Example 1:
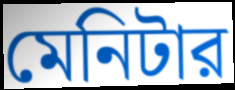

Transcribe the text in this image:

মেনিটার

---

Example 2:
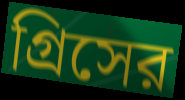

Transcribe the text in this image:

গ্রিসের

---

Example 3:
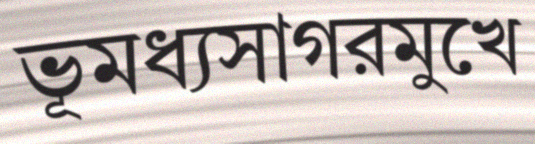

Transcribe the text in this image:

ভূমধ্যসাগরমুখে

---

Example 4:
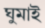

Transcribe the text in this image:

ঘুমাই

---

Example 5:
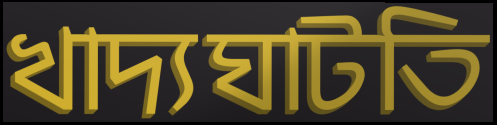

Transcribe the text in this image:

খাদ্যঘাটতি